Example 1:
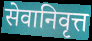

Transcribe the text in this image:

सेवानिवृत्त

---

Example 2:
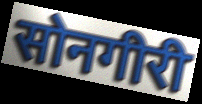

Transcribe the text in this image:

सोनगीरी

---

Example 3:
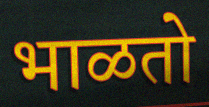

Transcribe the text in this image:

भाळतो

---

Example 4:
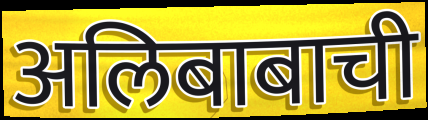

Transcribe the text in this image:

अलिबाबाची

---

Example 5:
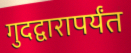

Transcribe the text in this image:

गुदद्वारापर्यंत